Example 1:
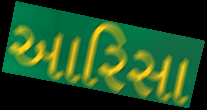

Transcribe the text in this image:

આરિસા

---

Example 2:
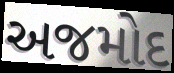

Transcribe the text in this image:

અજમોદ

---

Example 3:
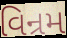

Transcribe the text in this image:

વિન્રમ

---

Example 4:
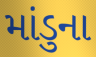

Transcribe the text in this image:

માંડુના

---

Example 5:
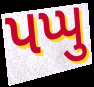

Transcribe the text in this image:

પપ્પુ